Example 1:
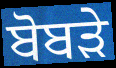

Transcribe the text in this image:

ਬੋਬੜੇ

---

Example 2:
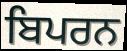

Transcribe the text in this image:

ਬਿਪਰਨ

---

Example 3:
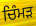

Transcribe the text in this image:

ਚਿੰਮੜ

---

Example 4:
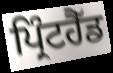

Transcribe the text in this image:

ਪ੍ਰਿੰਟਹੈੱਡ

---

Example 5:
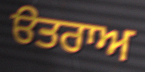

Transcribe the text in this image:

ੳਤਰਾਅ